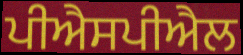
ਪੀਐਸਪੀਐਲ